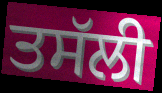
ਤਸੱਲੀ